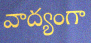
వాద్యంగా